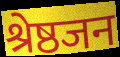
श्रेष्ठजन